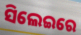
ସିଲେଇରେ